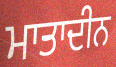
ਮਾਤਾਦੀਨ